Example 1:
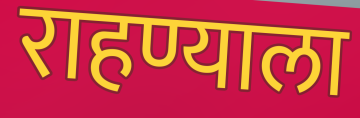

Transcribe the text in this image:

राहण्याला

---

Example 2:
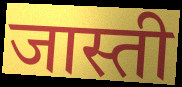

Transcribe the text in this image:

जास्ती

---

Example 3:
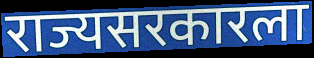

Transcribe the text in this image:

राज्यसरकारला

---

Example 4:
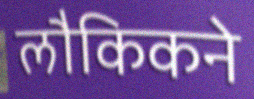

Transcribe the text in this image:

लौकिकने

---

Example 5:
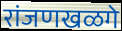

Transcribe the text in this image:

रांजणखळगे